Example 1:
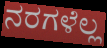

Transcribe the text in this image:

ನರಗಳೆಲ್ಲ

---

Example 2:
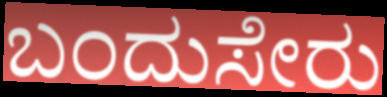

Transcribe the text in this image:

ಬಂದುಸೇರು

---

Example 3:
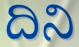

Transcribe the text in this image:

ದಿನಿ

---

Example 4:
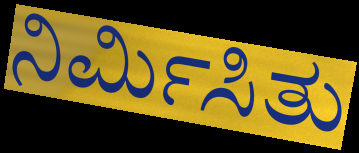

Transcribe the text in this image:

ನಿರ್ಮಿಸಿತು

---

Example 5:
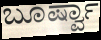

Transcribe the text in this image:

ಬೂರ್ಷ್ವಾ